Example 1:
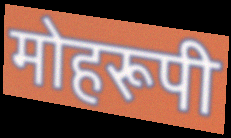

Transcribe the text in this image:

मोहरूपी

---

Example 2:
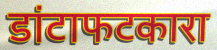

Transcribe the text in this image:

डांटाफटकारा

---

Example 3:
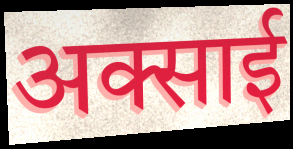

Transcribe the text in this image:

अक्साई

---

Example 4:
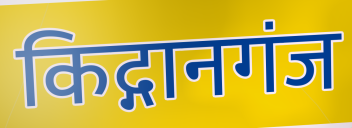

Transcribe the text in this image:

किद्गानगंज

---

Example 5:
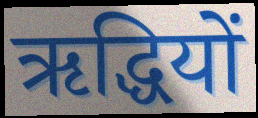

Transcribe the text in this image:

ऋद्धियों